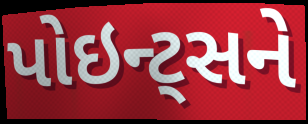
પોઇન્ટ્સને